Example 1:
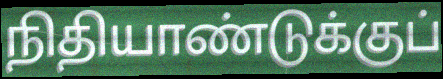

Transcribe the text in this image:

நிதியாண்டுக்குப்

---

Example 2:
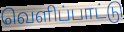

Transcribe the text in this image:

வெளிப்பாட்டு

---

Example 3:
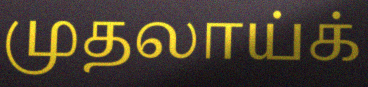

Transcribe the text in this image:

முதலாய்க்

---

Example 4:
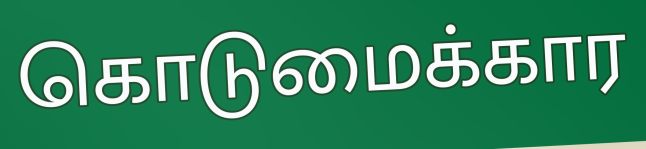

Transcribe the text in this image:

கொடுமைக்கார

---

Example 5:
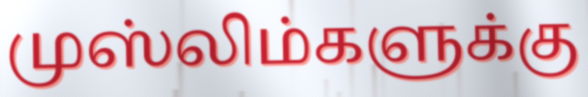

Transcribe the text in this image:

முஸ்லிம்களுக்கு